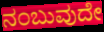
ನಂಬುವುದೇ